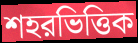
শহরভিত্তিক